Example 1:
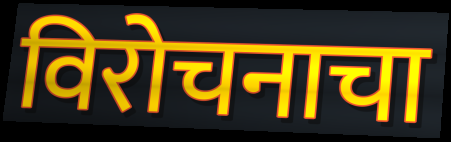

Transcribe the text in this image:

विरोचनाचा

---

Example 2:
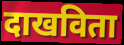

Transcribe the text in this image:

दाखविता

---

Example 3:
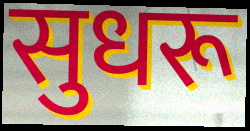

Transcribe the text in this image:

सुधरू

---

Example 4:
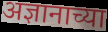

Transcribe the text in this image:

अज्ञानाच्या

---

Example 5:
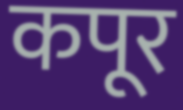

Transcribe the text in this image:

कपूर